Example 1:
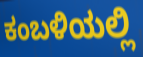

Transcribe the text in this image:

ಕಂಬಳಿಯಲ್ಲಿ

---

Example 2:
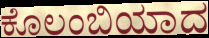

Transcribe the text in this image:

ಕೊಲಂಬಿಯಾದ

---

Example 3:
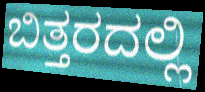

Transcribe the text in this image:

ಬಿತ್ತರದಲ್ಲಿ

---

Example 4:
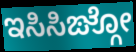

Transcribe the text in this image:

ಇಸಿಸಿಙ್ಗೋ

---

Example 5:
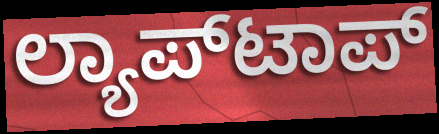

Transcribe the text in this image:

ಲ್ಯಾಪ್‌ಟಾಪ್